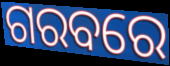
ଗରବରେ